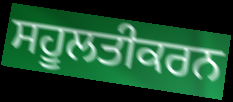
ਸਹੂਲਤੀਕਰਨ